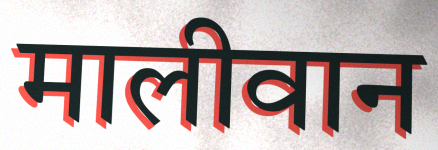
मालीवान